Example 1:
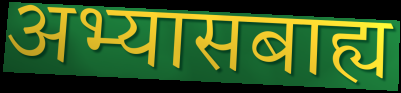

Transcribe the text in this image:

अभ्यासबाह्य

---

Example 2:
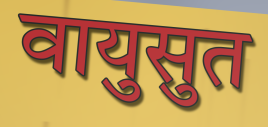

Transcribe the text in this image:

वायुसुत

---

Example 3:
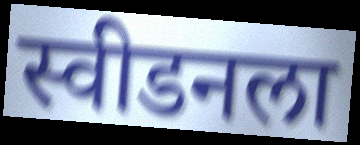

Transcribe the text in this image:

स्वीडनला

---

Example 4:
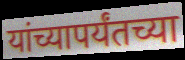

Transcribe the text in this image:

यांच्यापर्यंतच्या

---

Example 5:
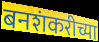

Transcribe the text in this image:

बनशंकरीच्या